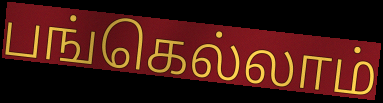
பங்கெல்லாம்